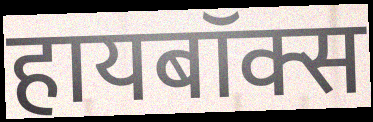
हायबॉक्स